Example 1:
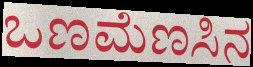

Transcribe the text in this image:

ಒಣಮೆಣಸಿನ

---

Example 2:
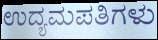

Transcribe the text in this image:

ಉದ್ಯಮಪತಿಗಳು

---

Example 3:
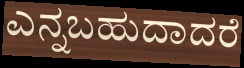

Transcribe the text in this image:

ಎನ್ನಬಹುದಾದರೆ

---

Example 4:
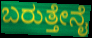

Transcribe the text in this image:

ಬರುತ್ತೇನೈ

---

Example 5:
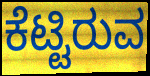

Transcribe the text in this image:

ಕೆಟ್ಟಿರುವ